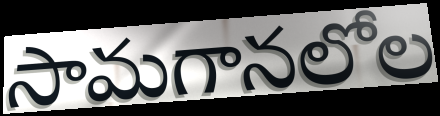
సామగానలోల